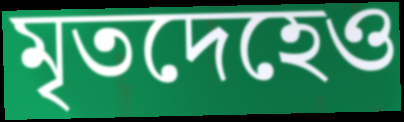
মৃতদেহেও